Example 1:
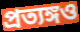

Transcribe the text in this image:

প্রত্যঙ্গও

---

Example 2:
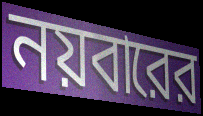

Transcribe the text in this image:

নয়বারের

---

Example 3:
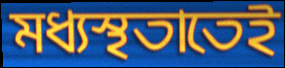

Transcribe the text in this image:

মধ্যস্থতাতেই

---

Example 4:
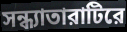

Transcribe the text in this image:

সন্ধ্যাতারাটিরে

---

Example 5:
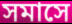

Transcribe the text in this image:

সমাসে